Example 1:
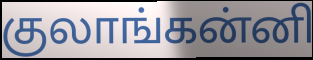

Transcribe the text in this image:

குலாங்கன்னி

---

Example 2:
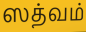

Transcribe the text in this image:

ஸத்வம்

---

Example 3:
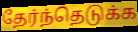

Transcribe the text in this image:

தேர்ந்தெடுக்க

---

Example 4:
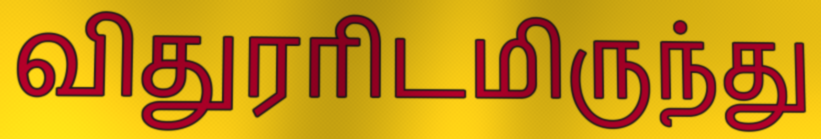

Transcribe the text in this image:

விதுரரிடமிருந்து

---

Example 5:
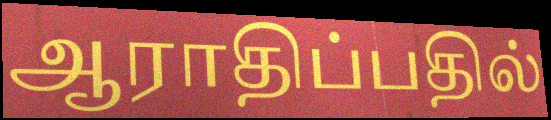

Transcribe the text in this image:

ஆராதிப்பதில்